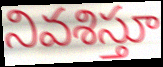
నివశిస్తూ